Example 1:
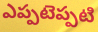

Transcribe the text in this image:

ఎప్పటెప్పటి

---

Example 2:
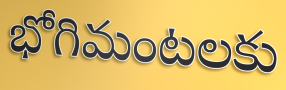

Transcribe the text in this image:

భోగిమంటలకు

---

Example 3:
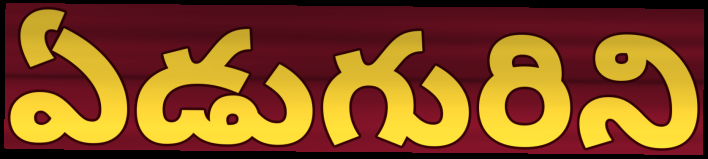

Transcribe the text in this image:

ఏడుగురిని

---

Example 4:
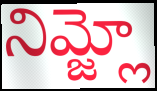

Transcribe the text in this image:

నిమ్జ్లో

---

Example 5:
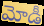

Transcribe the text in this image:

మోడీ